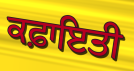
ਕਫ਼ਾਇਤੀ